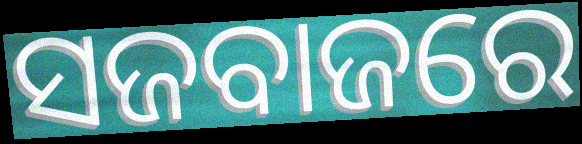
ସଜବାଜରେ